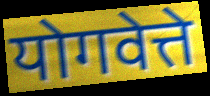
योगवेत्ते